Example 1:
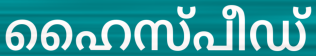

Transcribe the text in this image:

ഹൈസ്പീഡ്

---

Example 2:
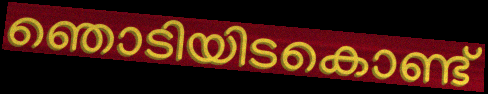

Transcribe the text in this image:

ഞൊടിയിടകൊണ്ട്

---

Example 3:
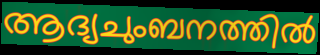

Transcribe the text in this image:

ആദ്യചുംബനത്തിൽ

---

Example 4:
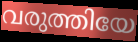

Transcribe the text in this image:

വരുത്തിയേ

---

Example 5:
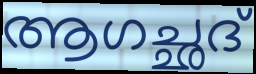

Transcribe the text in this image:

ആഗച്ഛദ്